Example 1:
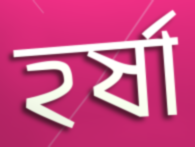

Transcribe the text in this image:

হর্ষা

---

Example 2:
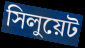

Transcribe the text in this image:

সিলুয়েট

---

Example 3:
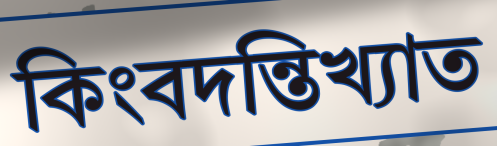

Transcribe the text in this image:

কিংবদন্তিখ্যাত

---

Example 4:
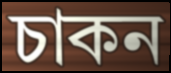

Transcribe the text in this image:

চাকন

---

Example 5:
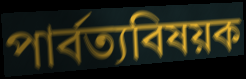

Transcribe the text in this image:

পার্বত্যবিষয়ক